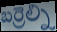
బర్రెల్ని